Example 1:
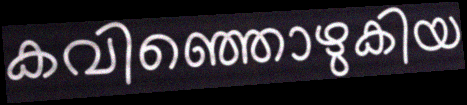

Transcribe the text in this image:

കവിഞ്ഞൊഴുകിയ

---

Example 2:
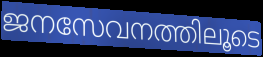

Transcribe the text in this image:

ജനസേവനത്തിലൂടെ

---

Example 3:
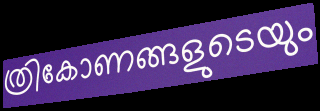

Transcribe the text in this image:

ത്രികോണങ്ങളുടെയും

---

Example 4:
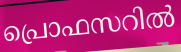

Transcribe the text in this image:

പ്രൊഫസറിൽ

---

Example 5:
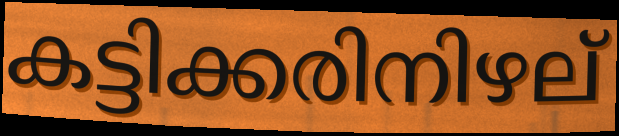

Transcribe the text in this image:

കട്ടിക്കരിനിഴല്